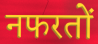
नफरतों